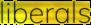
liberals